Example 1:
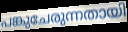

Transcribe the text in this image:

പങ്കുചേരുന്നതായി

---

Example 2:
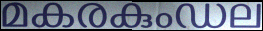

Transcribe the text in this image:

മകരകുംഡല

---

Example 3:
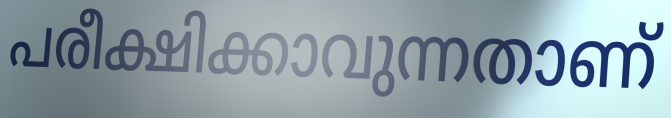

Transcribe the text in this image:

പരീക്ഷിക്കാവുന്നതാണ്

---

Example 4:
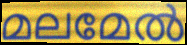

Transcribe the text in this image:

മലമേൽ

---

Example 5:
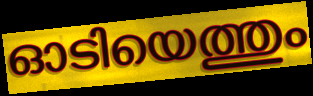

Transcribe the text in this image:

ഓടിയെത്തും